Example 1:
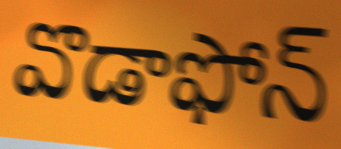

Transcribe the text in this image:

వొడాఫోన్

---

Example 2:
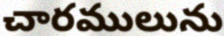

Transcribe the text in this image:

చారములును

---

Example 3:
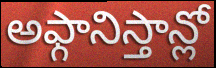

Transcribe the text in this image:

అఫ్గానిస్తాన్లో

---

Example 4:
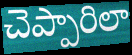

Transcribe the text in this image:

చెప్పారిలా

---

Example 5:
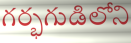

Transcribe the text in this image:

గర్భగుడిలోని